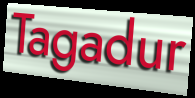
Tagadur